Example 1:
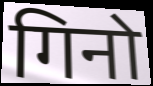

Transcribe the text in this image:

गिनो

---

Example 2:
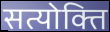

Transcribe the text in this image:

सत्योक्ति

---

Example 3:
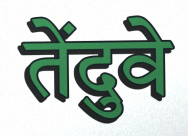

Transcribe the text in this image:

तेंदुवे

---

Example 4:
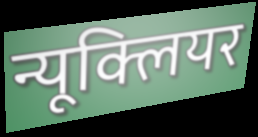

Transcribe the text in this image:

न्यूक्लियर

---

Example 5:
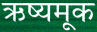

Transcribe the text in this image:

ऋष्यमूक